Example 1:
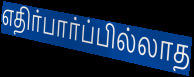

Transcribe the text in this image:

எதிர்பார்ப்பில்லாத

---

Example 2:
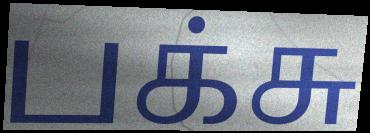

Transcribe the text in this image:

பக்சு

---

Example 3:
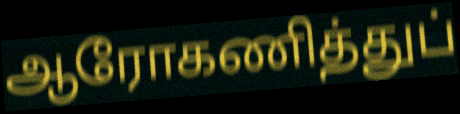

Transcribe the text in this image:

ஆரோகணித்துப்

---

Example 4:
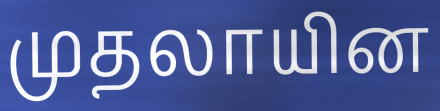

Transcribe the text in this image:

முதலாயின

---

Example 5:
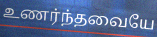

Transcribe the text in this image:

உணர்ந்தவையே